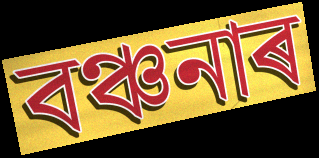
বঞ্চনাৰ